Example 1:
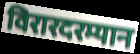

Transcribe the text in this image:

विरारदरम्यान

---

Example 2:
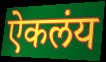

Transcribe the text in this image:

ऐकलंय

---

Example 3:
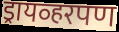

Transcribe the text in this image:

ड्रायव्हरपण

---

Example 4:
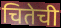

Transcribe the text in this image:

चितेची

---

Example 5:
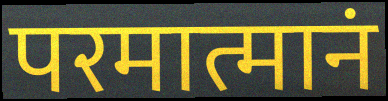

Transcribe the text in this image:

परमात्मानं